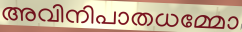
അവിനിപാതധമ്മോ